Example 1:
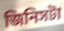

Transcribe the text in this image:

জিনিসটা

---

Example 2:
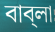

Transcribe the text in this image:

বাব্‌লা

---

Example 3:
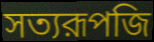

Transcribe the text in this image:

সত্যরূপজি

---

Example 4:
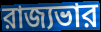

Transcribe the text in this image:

রাজ্যভার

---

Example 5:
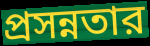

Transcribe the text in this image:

প্রসন্নতার